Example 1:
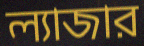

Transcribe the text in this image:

ল্যাজার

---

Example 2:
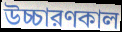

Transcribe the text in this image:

উচ্চারণকাল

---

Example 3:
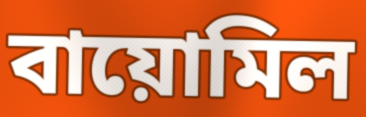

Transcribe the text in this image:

বায়োমিল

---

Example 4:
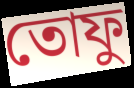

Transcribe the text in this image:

তোফু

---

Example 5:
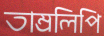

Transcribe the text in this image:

তাম্রলিপি